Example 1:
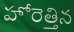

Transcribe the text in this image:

హోరెత్తిన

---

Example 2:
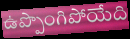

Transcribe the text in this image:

ఉప్పొంగిపోయేది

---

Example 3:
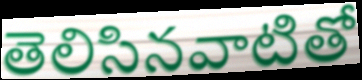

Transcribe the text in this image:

తెలిసినవాటితో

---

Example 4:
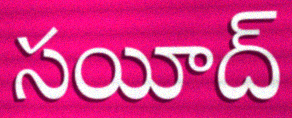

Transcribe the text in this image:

సయీద్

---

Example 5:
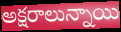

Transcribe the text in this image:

అక్షరాలున్నాయి